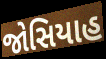
જોસિયાહ